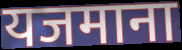
यजमाना